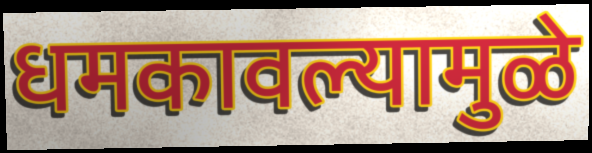
धमकावल्यामुळे